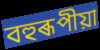
বহুৰূপীয়া